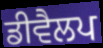
ਡੀਵੈਲਪ